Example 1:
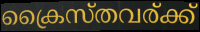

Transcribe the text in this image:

ക്രൈസ്തവര്ക്ക്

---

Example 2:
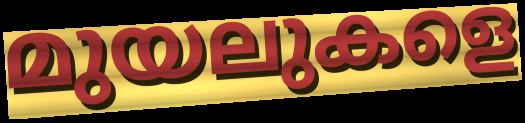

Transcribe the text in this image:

മുയലുകളെ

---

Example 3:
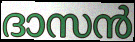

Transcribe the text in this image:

ദാസൻ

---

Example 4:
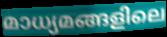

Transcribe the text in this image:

മാധ്യമങ്ങളിലെ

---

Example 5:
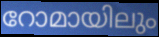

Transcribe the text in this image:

റോമായിലും